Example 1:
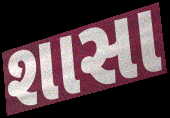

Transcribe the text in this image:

શાસા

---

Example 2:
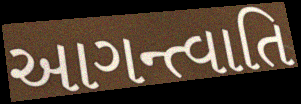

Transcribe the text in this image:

આગન્ત્વાતિ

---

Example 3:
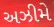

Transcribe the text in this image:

અઝીમે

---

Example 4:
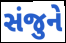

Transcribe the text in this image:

સંજુને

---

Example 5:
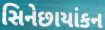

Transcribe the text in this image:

સિનેછાયાંકન